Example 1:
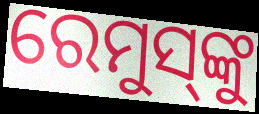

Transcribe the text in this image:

ରେମୁସ୍‌ଙ୍କୁ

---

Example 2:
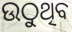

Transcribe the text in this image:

ଉଠୁଥିବ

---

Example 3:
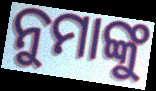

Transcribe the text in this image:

ନୁମାଙ୍କୁ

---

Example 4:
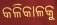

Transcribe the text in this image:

କଳିକାଳକୁ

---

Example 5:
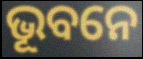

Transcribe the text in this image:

ଭୂବନେ